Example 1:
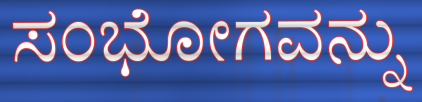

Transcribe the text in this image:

ಸಂಭೋಗವನ್ನು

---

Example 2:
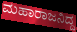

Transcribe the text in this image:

ಮಹಾರಾಜನಿದ್ದ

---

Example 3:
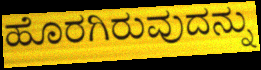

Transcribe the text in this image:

ಹೊರಗಿರುವುದನ್ನು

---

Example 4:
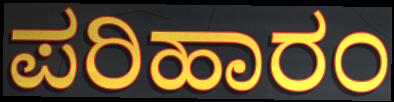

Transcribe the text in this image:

ಪರಿಹಾರಂ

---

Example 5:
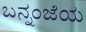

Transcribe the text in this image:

ಬನ್ನಂಜೆಯ